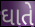
ઘાતે